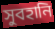
সুবহানি